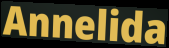
Annelida